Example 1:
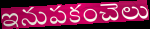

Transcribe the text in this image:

ఇనుపకంచెలు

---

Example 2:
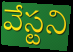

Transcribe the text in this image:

వేస్టని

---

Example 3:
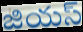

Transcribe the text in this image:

జియస్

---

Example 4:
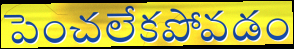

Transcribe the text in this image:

పెంచలేకపోవడం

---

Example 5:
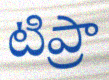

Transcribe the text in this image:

టిప్రా